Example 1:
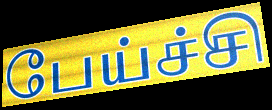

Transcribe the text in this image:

பேய்ச்சி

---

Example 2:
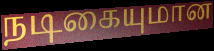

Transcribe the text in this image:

நடிகையுமான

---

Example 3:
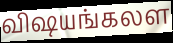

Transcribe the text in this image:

விஷயங்கலள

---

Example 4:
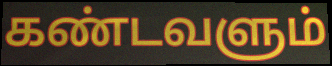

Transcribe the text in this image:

கண்டவளும்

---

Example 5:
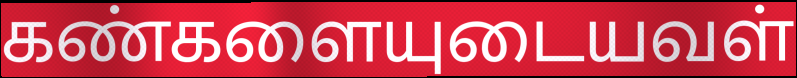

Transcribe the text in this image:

கண்களையுடையவள்